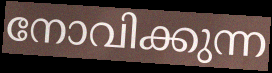
നോവിക്കുന്ന